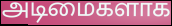
அடிமைகளாக